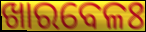
ଖାରବେଳଃ